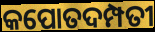
କପୋତଦମ୍ପତୀ